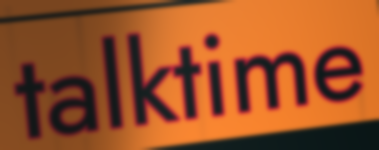
talktime